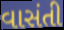
વાસંતી